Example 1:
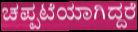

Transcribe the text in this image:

ಚಪ್ಪಟೆಯಾಗಿದ್ದರೆ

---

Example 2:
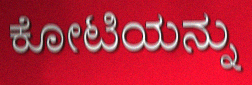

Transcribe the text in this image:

ಕೋಟಿಯನ್ನು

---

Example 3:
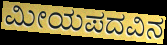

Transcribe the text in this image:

ಮೀಯಪದವಿನ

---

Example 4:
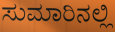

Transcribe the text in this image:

ಸುಮಾರಿನಲ್ಲಿ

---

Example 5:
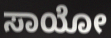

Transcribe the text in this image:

ಸಾಯೋ